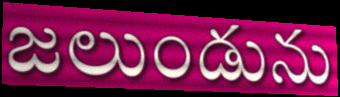
జలుండును